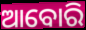
ଆବୋରି